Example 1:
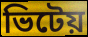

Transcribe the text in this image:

ভিটেয়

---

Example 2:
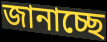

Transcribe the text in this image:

জানাচ্ছে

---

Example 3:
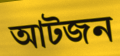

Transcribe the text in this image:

আটজন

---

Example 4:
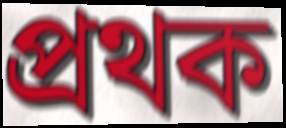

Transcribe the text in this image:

প্রথক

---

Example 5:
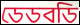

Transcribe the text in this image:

ডেডবডি